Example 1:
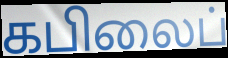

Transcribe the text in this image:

கபிலைப்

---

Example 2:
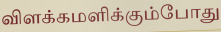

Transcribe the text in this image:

விளக்கமளிக்கும்போது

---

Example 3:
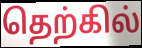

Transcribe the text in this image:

தெற்கில்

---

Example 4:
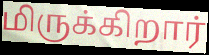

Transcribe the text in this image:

மிருக்கிறார்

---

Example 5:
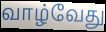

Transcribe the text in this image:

வாழ்வேது